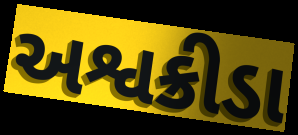
અશ્વક્રીડા